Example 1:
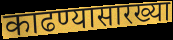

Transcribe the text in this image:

काढण्यासारख्या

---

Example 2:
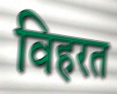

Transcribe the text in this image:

विहरत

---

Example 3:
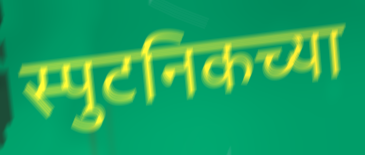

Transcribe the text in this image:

स्पुटनिकच्या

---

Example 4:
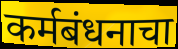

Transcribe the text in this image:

कर्मबंधनाचा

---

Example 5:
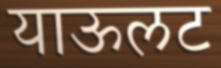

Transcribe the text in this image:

याऊलट